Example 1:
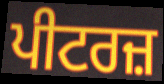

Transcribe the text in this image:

ਪੀਟਰਜ਼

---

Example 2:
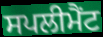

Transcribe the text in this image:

ਸਪਲੀਮੈਂਟ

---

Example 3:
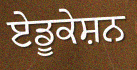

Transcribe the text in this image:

ਏਡੂਕੇਸ਼ਨ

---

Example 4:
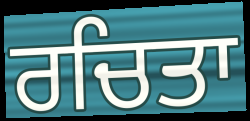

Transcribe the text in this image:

ਰਚਿਤਾ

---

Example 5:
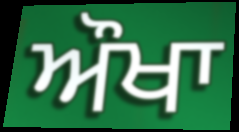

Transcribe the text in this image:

ਔਖਾ